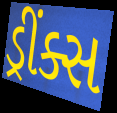
ડ્રીંક્સ